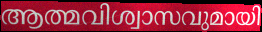
ആത്മവിശ്വാസവുമായി